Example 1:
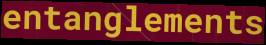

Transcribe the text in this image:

entanglements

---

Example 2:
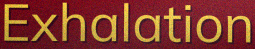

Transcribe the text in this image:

Exhalation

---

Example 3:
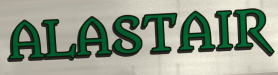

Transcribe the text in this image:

ALASTAIR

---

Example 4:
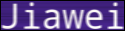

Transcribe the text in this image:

Jiawei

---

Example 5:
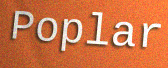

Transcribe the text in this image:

Poplar